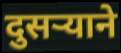
दुसर्‍याने